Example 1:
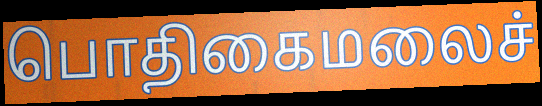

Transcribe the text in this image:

பொதிகைமலைச்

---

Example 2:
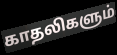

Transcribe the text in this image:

காதலிகளும்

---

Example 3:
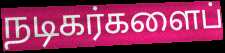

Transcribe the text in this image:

நடிகர்களைப்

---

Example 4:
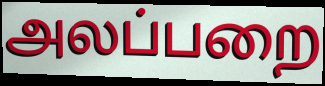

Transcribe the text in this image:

அலப்பறை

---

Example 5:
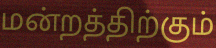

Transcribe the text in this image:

மன்றத்திற்கும்